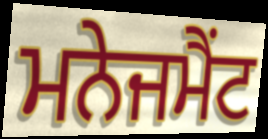
ਮਨੇਜਮੈਂਟ